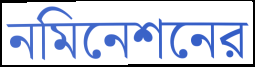
নমিনেশনের